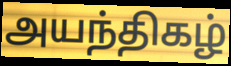
அயந்திகழ்